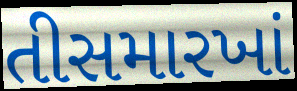
તીસમારખાં